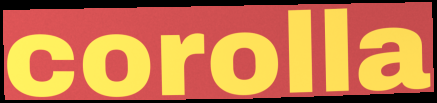
corolla